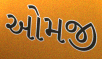
ઓમજી